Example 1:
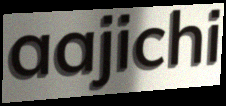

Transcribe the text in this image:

aajichi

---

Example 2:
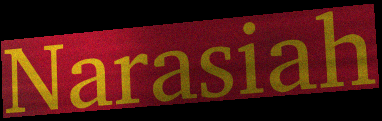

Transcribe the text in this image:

Narasiah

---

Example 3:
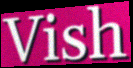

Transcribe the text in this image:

Vish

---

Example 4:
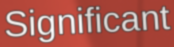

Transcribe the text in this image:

Significant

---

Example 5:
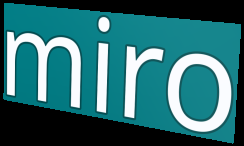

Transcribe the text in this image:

miro